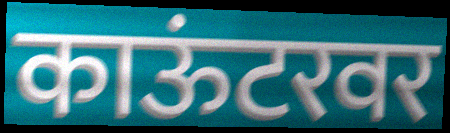
काऊंटरवर